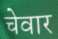
चेवार